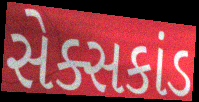
સેક્સકાંડ